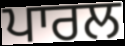
ਪਾਰਲ